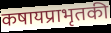
कषायप्राभृतकी